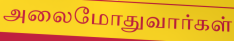
அலைமோதுவார்கள்